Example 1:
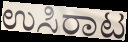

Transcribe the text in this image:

ಉಸಿರಾಟ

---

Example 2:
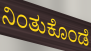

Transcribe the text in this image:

ನಿಂತುಕೊಂಡೆ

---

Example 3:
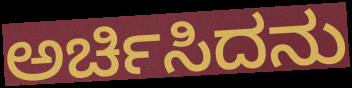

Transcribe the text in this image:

ಅರ್ಚಿಸಿದನು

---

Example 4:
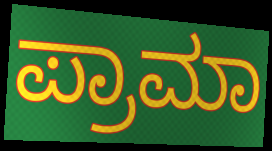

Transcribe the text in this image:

ಪ್ರಾಮಾ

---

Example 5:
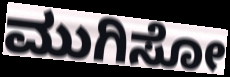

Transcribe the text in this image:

ಮುಗಿಸೋ